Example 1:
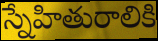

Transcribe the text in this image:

స్నేహితురాలికి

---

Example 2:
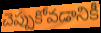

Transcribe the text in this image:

చెప్పుకోవడానికీ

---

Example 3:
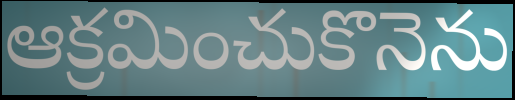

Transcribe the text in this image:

ఆక్రమించుకొనెను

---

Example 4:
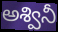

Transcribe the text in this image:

అశ్వినీ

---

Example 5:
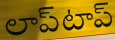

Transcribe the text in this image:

లాప్‌టాప్